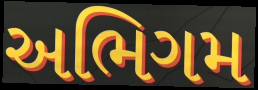
અભિગમ